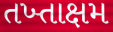
તખ્તાક્ષમ